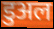
डुअल